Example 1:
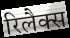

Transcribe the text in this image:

रिलैक्स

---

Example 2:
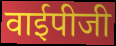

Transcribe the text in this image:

वाईपीजी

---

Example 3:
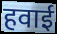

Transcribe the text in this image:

हवाई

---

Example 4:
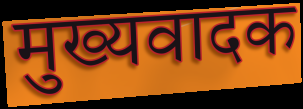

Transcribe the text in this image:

मुख्यवादक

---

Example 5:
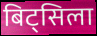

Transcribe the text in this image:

बिट्सिला